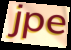
jpe